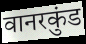
वानरकुंड